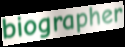
biographer